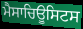
ਮੈਸਾਚਿਊਸਿਟਸ